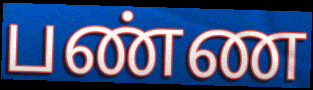
பண்ண